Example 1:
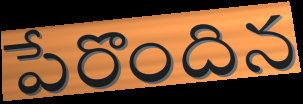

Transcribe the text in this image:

పేరొందిన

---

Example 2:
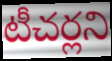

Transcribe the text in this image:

టీచర్లని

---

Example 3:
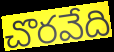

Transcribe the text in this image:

చొరవేది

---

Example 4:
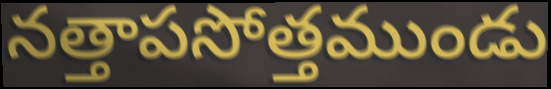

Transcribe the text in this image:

నత్తాపసోత్తముండు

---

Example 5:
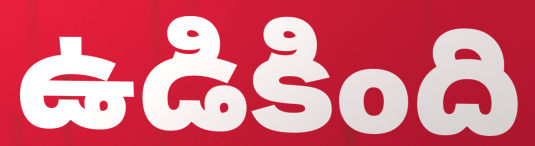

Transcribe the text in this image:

ఉడికింది